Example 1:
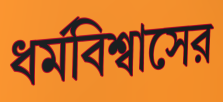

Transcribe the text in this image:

ধর্মবিশ্বাসের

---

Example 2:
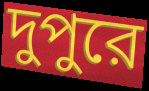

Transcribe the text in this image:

দুপুরে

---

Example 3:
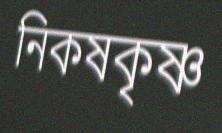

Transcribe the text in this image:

নিকষকৃষ্ণ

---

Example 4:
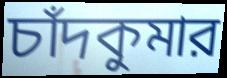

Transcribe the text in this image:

চাঁদকুমার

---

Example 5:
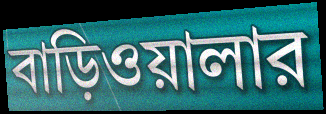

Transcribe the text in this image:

বাড়িওয়ালার